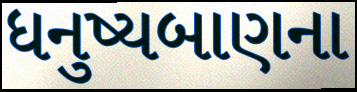
ધનુષ્યબાણના